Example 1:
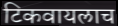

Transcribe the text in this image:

टिकवायलाच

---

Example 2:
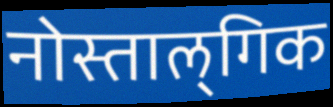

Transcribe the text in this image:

नोस्ताल्गिक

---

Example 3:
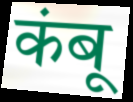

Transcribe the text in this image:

कंबू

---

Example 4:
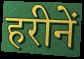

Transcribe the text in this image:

हरीनें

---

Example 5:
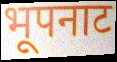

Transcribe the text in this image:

भूपनाट